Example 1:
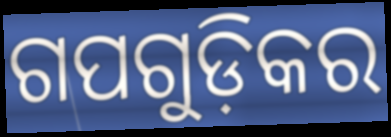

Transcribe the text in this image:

ଗପଗୁଡ଼ିକର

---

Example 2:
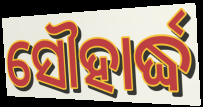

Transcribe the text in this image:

ସୌହାର୍ଦ୍ଧ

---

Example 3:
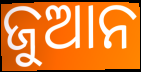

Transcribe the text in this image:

ଜୁଆନ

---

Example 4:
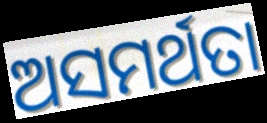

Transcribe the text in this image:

ଅସମର୍ଥତା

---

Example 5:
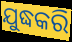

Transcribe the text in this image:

ଯୁଦ୍ଧକରି